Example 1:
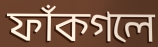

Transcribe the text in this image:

ফাঁকগলে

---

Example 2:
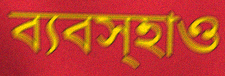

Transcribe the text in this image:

ব্যবস্হাও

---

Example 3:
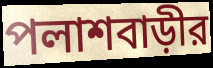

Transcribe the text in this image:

পলাশবাড়ীর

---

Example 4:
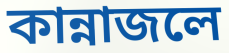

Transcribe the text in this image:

কান্নাজলে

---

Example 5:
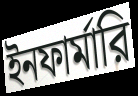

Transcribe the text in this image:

ইনফার্মারি